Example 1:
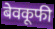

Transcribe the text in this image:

बेवकूफी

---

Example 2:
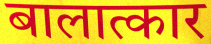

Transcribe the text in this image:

बालात्कार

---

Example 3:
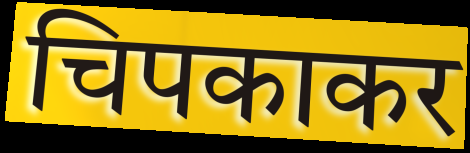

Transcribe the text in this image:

चिपकाकर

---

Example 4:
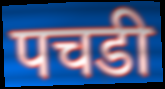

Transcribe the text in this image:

पचडी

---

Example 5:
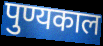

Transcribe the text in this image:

पुण्यकाल